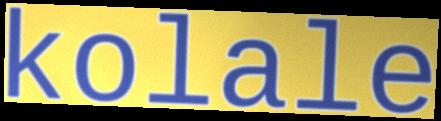
kolale